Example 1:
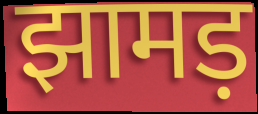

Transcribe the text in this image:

झामड़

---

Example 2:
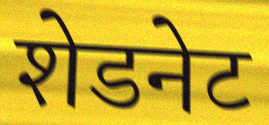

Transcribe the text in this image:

शेडनेट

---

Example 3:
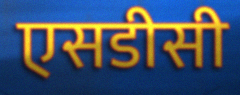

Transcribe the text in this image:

एसडीसी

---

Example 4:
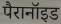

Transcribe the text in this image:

पैरानॉइड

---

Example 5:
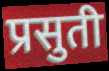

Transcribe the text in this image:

प्रसुती